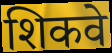
शिकवे